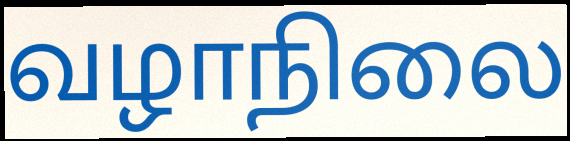
வழாநிலை